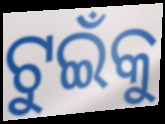
ଟୁଇଁକୁ